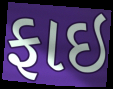
ફાઇ